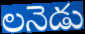
లనెడు